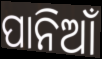
ପାନିଆଁ